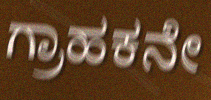
ಗ್ರಾಹಕನೇ